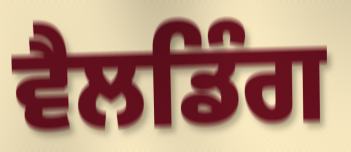
ਵੈਲਡਿੰਗ